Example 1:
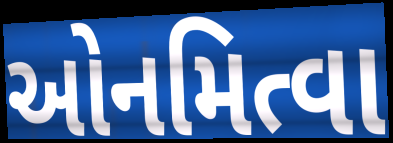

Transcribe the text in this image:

ઓનમિત્વા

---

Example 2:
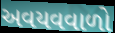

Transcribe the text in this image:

અવયવવાળો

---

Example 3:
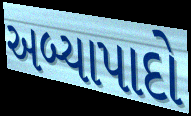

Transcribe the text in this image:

અબ્યાપાદો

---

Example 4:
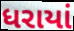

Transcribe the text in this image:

ધરાયાં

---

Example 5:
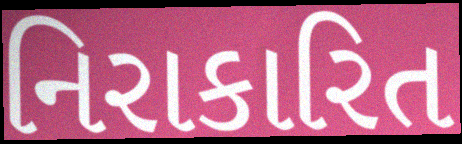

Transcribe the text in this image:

નિરાકારિત